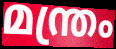
മന്ത്രം